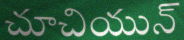
చూచియున్